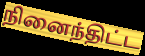
நினைந்திட்ட